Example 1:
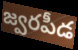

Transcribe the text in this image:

జ్వరపీడ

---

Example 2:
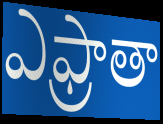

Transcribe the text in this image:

ఎఫ్రాతా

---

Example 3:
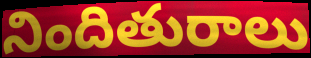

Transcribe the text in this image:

నిందితురాలు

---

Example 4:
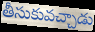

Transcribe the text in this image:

తీసుకువచ్చాడు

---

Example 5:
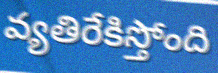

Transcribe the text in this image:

వ్యతిరేకిస్తోంది